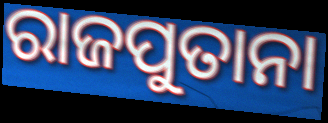
ରାଜପୁତାନା